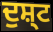
ਦੁਸ਼੍ਟ